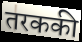
तरककी